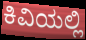
ಕಿವಿಯಲ್ಲಿ